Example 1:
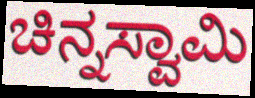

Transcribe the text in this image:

ಚಿನ್ನಸ್ವಾಮಿ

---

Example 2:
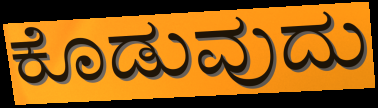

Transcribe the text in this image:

ಕೊಡುವುದು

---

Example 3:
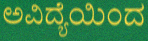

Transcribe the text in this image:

ಅವಿದ್ಯೆಯಿಂದ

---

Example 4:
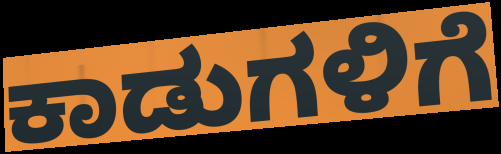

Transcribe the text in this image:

ಕಾಡುಗಳಿಗೆ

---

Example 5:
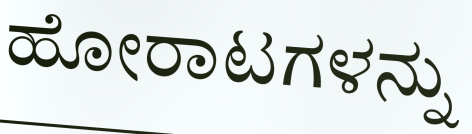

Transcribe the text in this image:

ಹೋರಾಟಗಳನ್ನು